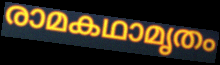
രാമകഥാമൃതം